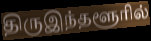
திருஇந்தளூரில்